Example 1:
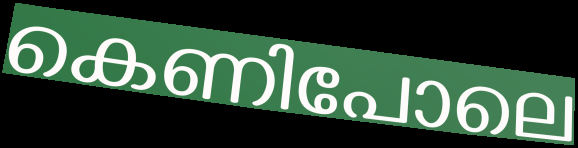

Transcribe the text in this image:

കെണിപോലെ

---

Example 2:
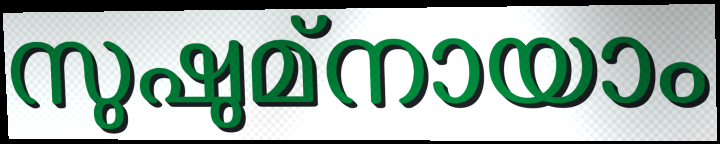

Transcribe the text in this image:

സുഷുമ്നായാം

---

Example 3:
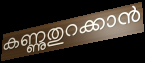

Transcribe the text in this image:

കണ്ണുതുറക്കാൻ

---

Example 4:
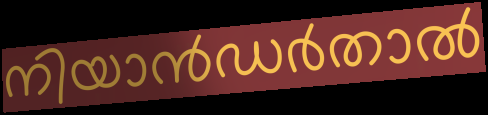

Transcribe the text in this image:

നിയാൻഡർതാൽ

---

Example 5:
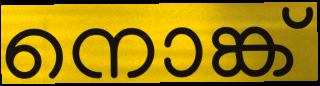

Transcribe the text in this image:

നൊങ്ക്